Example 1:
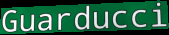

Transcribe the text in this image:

Guarducci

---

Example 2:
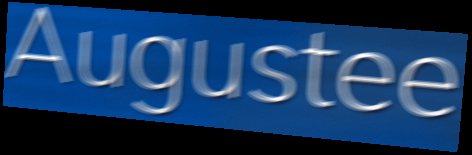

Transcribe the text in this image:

Augustee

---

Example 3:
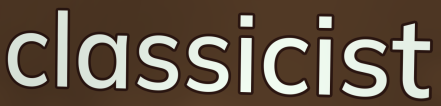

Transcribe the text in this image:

classicist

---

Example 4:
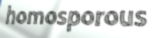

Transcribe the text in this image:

homosporous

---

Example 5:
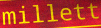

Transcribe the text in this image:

millett